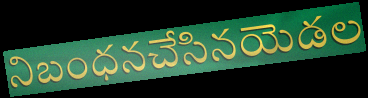
నిబంధనచేసినయెడల